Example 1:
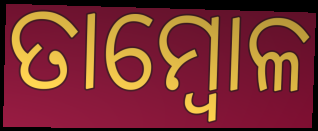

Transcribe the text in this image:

ତାମ୍ବୋଳ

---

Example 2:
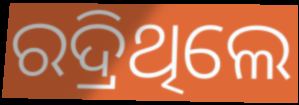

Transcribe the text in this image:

ରଦ୍ରିଥିଲେ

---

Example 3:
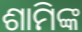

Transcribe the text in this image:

ଶାମିଙ୍କ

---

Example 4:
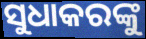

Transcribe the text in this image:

ସୁଧାକରଙ୍କୁ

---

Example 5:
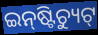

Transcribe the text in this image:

ଇନ୍‌ଷ୍ଟିଚ୍ୟୁଟ୍